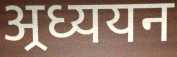
अ्रध्ययन